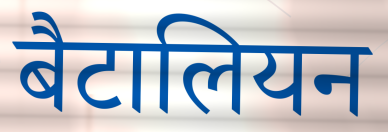
बैटालियन